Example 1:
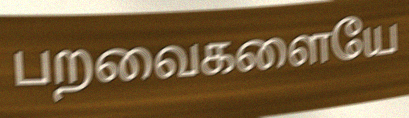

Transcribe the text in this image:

பறவைகளையே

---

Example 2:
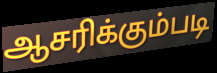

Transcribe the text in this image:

ஆசரிக்கும்படி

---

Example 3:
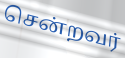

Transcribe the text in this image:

சென்றவர்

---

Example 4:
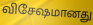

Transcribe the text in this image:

விசேஷமானது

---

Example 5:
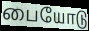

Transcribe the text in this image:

பையோடு